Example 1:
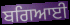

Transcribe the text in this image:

ਬਗਿਆਈ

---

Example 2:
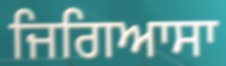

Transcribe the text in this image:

ਜਿਗਿਆਸਾ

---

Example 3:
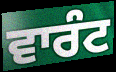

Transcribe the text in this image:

ਵਾਰੰਟ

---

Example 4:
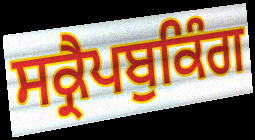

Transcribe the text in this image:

ਸਕ੍ਰੈਪਬੁਕਿੰਗ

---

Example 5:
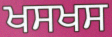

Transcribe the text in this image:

ਖਸਖਸ